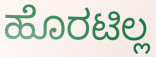
ಹೊರಟಿಲ್ಲ